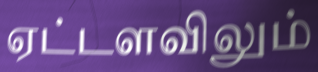
ஏட்டளவிலும்